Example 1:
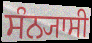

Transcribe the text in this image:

ਸੰਨ੍ਯਾਸੀ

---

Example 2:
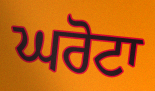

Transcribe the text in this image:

ਘਰੋਟਾ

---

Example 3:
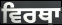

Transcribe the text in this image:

ਵਿਰਥਾ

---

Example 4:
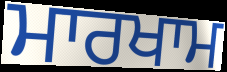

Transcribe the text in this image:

ਮਾਰਖਾਮ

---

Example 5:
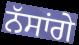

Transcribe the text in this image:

ਨੱਸਾਂਗੇ